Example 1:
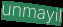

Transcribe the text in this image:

unmayil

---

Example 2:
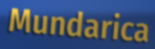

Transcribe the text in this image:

Mundarica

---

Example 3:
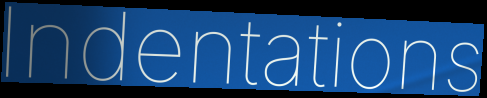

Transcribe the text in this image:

Indentations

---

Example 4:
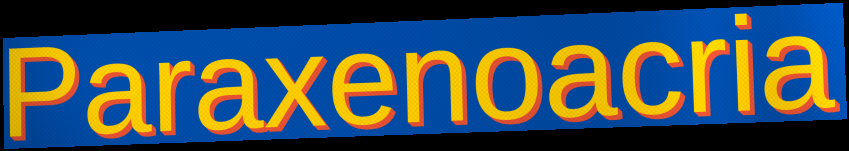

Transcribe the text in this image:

Paraxenoacria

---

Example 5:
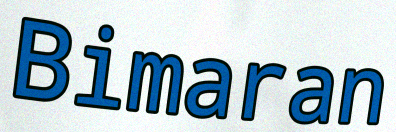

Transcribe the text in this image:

Bimaran